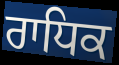
ਰਾਧਿਕ